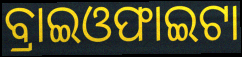
ବ୍ରାଇଓଫାଇଟା